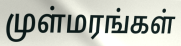
முள்மரங்கள்